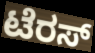
ಟೆರಸ್